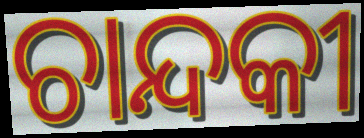
ଚାନ୍ଦକୀ